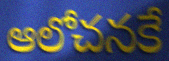
ఆలోచనకే